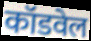
कॉडवेल